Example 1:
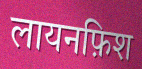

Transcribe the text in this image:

लायनफ़िश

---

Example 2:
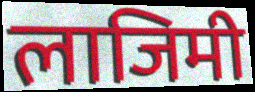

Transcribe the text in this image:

लाजिमी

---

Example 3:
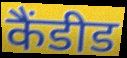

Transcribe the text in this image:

कैंडीड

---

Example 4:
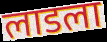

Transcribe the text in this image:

लाडला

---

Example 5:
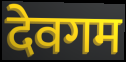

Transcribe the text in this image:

देवगम